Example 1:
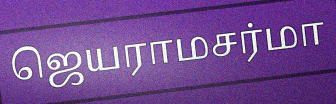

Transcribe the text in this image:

ஜெயராமசர்மா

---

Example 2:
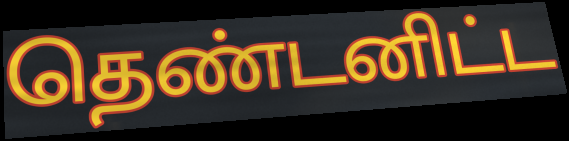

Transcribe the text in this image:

தெண்டனிட்ட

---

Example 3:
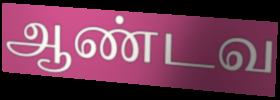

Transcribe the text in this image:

ஆண்டவ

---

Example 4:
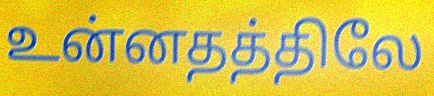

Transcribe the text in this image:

உன்னதத்திலே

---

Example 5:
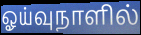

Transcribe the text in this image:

ஓய்வுநாளில்